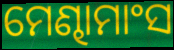
ମେଣ୍ଢାମାଂସ